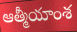
ఆత్మీయాంశ